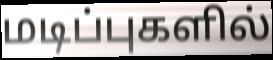
மடிப்புகளில்